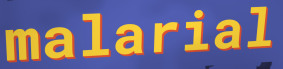
malarial